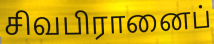
சிவபிரானைப்